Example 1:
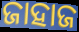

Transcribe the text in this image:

ଜାହାଜ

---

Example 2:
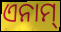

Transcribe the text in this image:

ଏନାମ୍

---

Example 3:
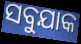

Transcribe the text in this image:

ସବୁଯାକ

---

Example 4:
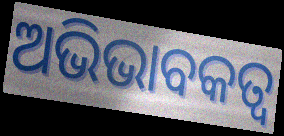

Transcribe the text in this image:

ଅଭିଭାବକତ୍ବ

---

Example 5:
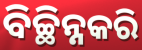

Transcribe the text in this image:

ବିଚ୍ଛିନ୍ନକରି